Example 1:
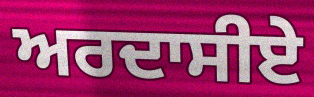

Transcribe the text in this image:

ਅਰਦਾਸੀਏ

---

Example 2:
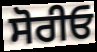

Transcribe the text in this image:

ਸੋਰੀਓ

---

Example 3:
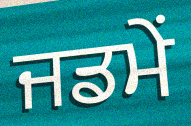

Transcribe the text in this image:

ਜਡਮੇਂ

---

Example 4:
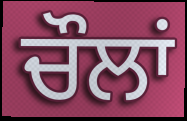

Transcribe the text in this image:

ਚੌਲਾਂ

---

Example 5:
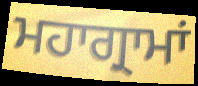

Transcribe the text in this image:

ਮਹਾਗ੍ਰਾਮਾਂ